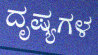
ದೃಷ್ಯಗಳ